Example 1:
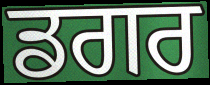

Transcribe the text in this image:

ਡਗਰ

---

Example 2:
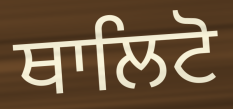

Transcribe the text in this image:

ਥਾਲਿਟੋ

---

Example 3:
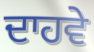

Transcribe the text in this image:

ਦਾਹਵੇ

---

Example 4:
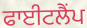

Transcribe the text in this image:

ਫਾਈਟਲੈਂਪ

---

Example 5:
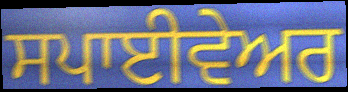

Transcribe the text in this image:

ਸਪਾਈਵੇਅਰ